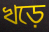
খড়ে